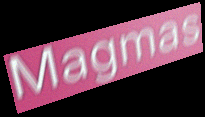
Magmas